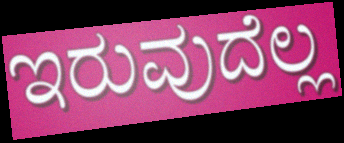
ಇರುವುದೆಲ್ಲ